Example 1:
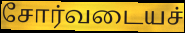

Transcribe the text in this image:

சோர்வடையச்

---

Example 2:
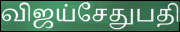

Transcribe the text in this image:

விஜய்சேதுபதி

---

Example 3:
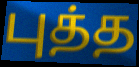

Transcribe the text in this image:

புத்த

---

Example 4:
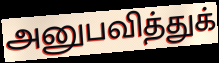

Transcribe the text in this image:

அனுபவித்துக்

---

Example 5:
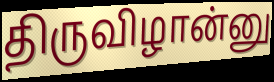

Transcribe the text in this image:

திருவிழான்னு